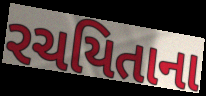
રચયિતાના